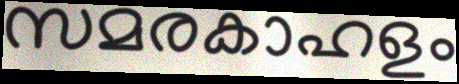
സമരകാഹളം